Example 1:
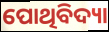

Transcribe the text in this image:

ପୋଥିବିଦ୍ୟା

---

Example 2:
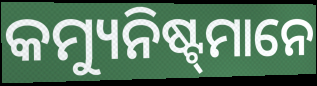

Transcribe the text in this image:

କମ୍ୟୁନିଷ୍ଟ୍‌ମାନେ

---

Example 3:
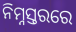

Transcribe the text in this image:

ନିମ୍ନସ୍ତରରେ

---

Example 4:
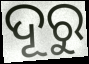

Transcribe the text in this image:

ଦୂରୁ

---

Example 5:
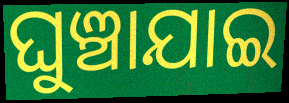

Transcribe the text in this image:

ଘୁଞ୍ଚାଯାଇ